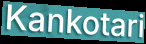
Kankotari